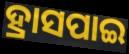
ହ୍ରାସପାଇ